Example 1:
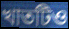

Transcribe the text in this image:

খাতটিও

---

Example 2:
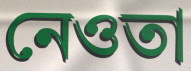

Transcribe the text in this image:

নেওতা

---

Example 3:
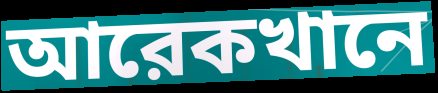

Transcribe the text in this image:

আরেকখানে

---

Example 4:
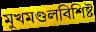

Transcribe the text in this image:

মুখমণ্ডলবিশিষ্ট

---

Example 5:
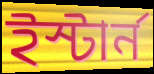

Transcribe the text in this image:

ইস্টার্ন